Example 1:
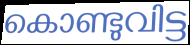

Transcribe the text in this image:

കൊണ്ടുവിട്ട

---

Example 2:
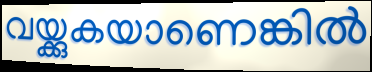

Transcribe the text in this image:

വയ്ക്കുകയാണെങ്കിൽ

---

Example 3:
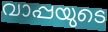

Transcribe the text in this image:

വാപ്പയുടെ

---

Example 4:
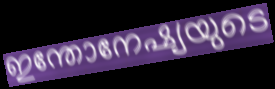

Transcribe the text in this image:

ഇന്തോനേഷ്യയുടെ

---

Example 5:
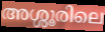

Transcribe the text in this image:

അശ്ശൂരിലെ